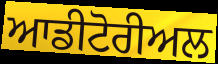
ਆਡੀਟੋਰੀਅਲ